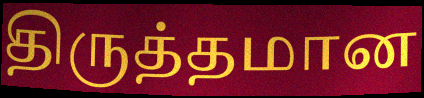
திருத்தமான